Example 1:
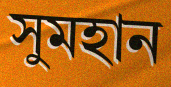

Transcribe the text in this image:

সুমহান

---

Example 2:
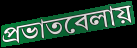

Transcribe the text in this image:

প্রভাতবেলায়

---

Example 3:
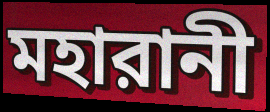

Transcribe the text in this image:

মহারানী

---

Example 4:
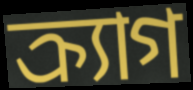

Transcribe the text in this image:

ক্র্যাগ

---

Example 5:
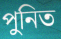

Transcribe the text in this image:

পুনিত